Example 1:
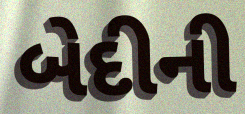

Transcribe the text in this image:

બેદીની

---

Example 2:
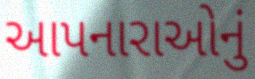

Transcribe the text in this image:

આપનારાઓનું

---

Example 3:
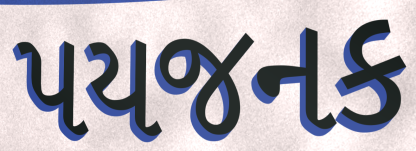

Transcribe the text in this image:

પયજનક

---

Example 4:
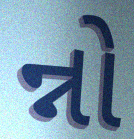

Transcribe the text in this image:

ન્નો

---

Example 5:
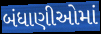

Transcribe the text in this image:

બંધાણીઓમાં